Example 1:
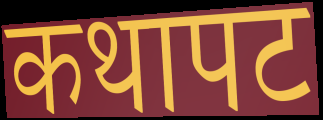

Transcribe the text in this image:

कथापट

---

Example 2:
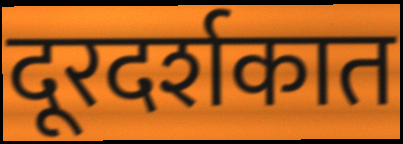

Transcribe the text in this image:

दूरदर्शकात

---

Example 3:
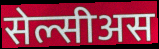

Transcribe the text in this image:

सेल्सीअस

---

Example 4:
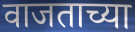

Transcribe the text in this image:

वाजताच्या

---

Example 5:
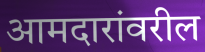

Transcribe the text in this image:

आमदारांवरील